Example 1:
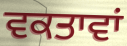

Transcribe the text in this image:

ਵਕਤਾਵਾਂ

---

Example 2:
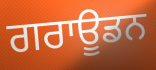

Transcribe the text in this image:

ਗਰਾਊਡਨ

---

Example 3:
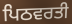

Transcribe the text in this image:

ਪਿਠਵਰਤੀ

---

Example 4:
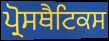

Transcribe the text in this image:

ਪ੍ਰੋਸਥੈਟਿਕਸ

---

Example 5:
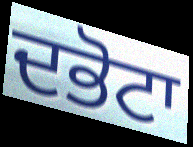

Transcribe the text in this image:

ਦਭੋਟਾ